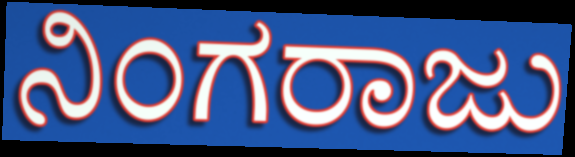
ನಿಂಗರಾಜು